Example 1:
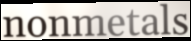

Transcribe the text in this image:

nonmetals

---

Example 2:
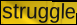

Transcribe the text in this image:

struggle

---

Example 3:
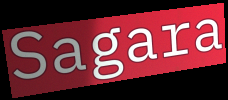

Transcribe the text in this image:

Sagara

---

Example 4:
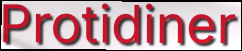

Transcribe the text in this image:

Protidiner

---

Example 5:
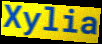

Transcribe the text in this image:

Xylia